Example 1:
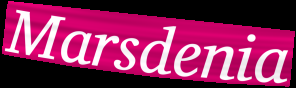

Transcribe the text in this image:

Marsdenia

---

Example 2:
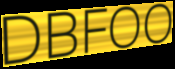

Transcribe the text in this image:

DBFOO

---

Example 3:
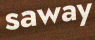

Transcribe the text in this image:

saway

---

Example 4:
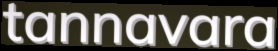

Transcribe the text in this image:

tannavara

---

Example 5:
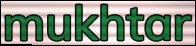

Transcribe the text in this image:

mukhtar